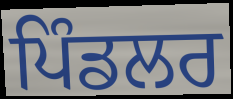
ਪਿੰਡਲਰ